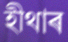
হীথাৰ